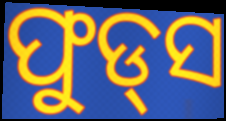
ଫୁଡ୍‌ସ